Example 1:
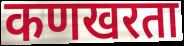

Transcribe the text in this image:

कणखरता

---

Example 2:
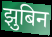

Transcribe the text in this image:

झुबिन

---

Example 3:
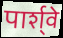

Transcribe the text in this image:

पार्श्वे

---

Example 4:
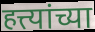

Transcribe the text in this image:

हत्त्यांच्या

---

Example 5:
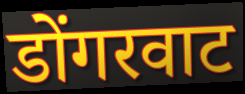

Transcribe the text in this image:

डोंगरवाट